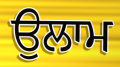
ਉਲਾਮ